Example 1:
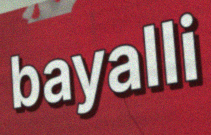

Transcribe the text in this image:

bayalli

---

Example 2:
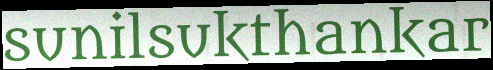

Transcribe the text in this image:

sunilsukthankar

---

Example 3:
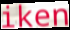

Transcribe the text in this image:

iken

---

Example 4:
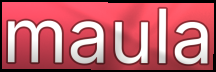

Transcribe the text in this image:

maula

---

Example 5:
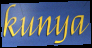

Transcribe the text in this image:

kunya